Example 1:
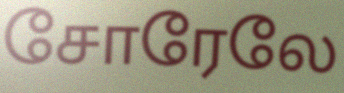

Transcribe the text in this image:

சோரேலே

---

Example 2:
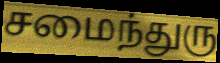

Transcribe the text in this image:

சமைந்துரு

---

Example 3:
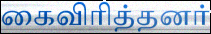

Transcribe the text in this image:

கைவிரித்தனர்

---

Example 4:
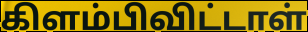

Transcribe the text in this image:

கிளம்பிவிட்டாள்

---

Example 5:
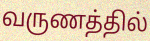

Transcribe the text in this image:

வருணத்தில்